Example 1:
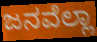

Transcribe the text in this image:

ಜನವೆಲ್ಲಾ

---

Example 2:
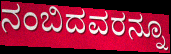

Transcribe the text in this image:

ನಂಬಿದವರನ್ನೂ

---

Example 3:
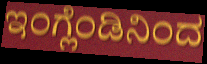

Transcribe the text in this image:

ಇಂಗ್ಲೆಂಡಿನಿಂದ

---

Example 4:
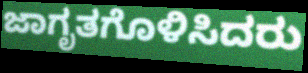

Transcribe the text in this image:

ಜಾಗೃತಗೊಳಿಸಿದರು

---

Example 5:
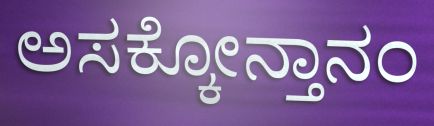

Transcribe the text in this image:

ಅಸಕ್ಕೋನ್ತಾನಂ